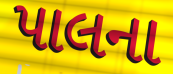
પાલના